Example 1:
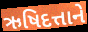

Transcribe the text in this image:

ઋષિદત્તાને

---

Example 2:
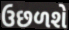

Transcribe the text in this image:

ઉછળશે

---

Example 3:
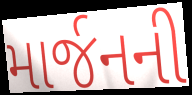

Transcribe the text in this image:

માર્જનની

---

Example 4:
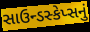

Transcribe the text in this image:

સાઉન્ડસ્કેપ્સનું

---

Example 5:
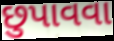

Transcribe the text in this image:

છુપાવવા